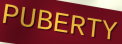
PUBERTY